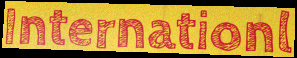
Internationl